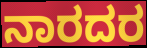
ನಾರದರ